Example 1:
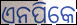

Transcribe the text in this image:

ଏନପିକେ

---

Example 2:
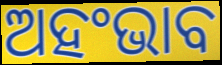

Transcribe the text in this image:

ଅହଂଭାବ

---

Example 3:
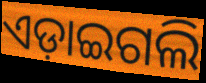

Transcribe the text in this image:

ଏଡ଼ାଇଗଲି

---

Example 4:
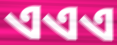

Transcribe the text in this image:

ଏଏଏ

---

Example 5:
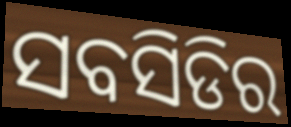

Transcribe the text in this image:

ସବସିଡିର